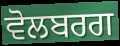
ਵੋਲਬਰਗ